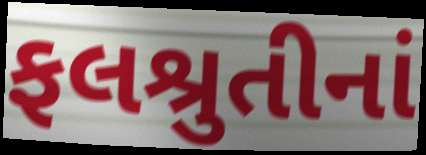
ફલશ્રુતીનાં